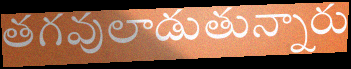
తగవులాడుతున్నారు